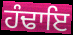
ਹੰਢਾਇ